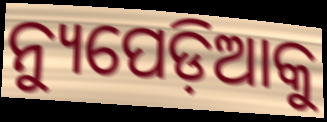
ନ୍ୟୁପେଡ଼ିଆକୁ